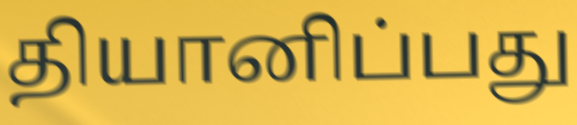
தியானிப்பது